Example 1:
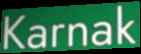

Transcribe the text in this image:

Karnak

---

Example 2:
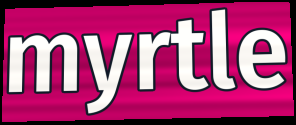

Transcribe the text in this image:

myrtle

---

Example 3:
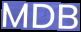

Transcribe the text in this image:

MDB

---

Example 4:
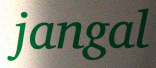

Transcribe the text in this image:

jangal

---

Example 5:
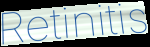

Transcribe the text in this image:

Retinitis